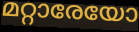
മറ്റാരേയോ